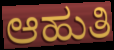
ಆಹುತಿ